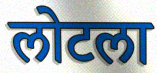
लोटला